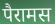
पैरामस